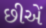
છીએં